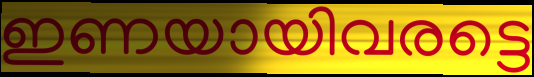
ഇണയായിവരട്ടെ